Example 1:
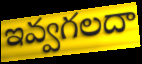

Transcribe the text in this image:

ఇవ్వగలదా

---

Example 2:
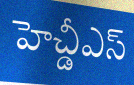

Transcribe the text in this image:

హెచ్డీఎస్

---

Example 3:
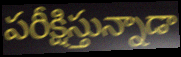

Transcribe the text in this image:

పరీక్షిస్తున్నాడా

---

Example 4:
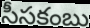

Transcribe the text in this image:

సీసకంబు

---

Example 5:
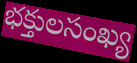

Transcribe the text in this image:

భక్తులసంఖ్య